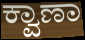
ಕ್ವಾಣಾ